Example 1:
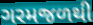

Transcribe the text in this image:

ગરમજળથી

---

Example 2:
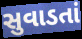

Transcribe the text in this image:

સુવાડતાં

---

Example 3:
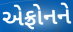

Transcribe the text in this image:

એફ્રોનને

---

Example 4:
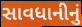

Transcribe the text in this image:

સાવધાનીનું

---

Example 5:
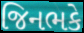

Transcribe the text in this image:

જિનભકે